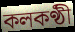
কলকণ্ঠী